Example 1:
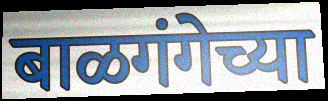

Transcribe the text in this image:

बाळगंगेच्या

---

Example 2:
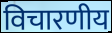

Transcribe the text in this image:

विचारणीय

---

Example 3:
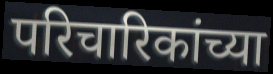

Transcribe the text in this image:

परिचारिकांच्या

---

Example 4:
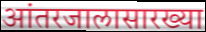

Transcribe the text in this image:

आंतरजालासारख्या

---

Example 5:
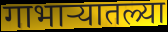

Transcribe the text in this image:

गाभाऱ्यातल्या